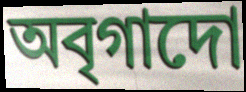
অবৃগাদো